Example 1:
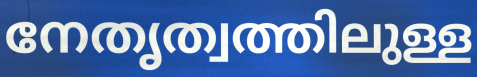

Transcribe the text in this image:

നേതൃത്വത്തിലുള്ള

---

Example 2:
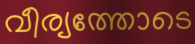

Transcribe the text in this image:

വീര്യത്തോടെ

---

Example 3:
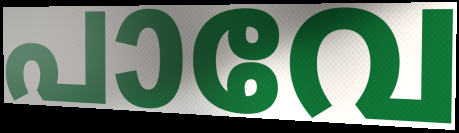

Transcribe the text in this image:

പാവേ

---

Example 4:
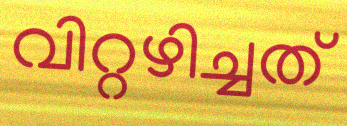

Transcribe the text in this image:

വിറ്റഴിച്ചത്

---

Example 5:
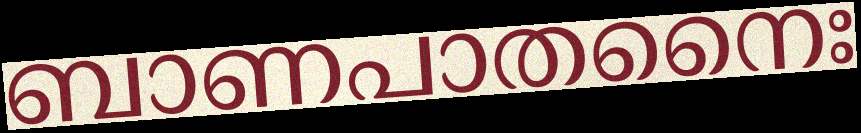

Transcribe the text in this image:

ബാണപാതനൈഃ